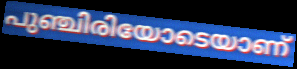
പുഞ്ചിരിയോടെയാണ്